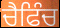
ਚੈਫਿੰਚ